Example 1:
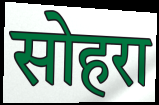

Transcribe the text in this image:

सोहरा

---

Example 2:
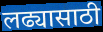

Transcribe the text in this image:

लढ्यासाठी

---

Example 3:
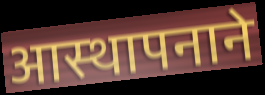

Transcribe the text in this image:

आस्थापनाने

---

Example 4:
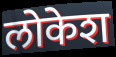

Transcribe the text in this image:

लोकेश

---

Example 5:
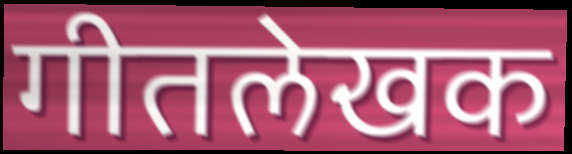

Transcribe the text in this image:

गीतलेखक